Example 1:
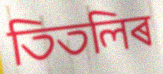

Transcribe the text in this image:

তিতলিৰ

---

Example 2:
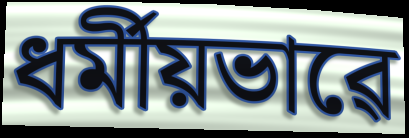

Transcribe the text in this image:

ধৰ্মীয়ভাৱে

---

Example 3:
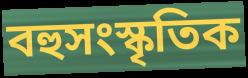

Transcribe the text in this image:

বহুসংস্কৃতিক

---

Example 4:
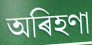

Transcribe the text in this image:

অৰিহণা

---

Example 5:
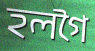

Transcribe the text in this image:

হলগৈ